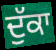
ਦੁੱਕਾ